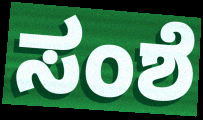
ಸಂಶೆ